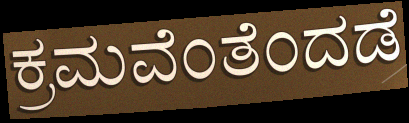
ಕ್ರಮವೆಂತೆಂದಡೆ